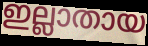
ഇല്ലാതായ